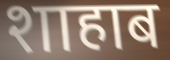
शाहाब